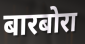
बारबोरा